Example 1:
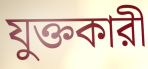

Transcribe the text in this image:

যুক্তকারী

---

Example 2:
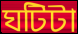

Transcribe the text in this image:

ঘটিটা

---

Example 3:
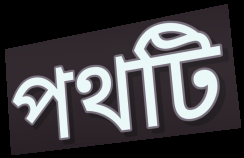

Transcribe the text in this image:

পথটি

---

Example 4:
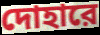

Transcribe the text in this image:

দোহারে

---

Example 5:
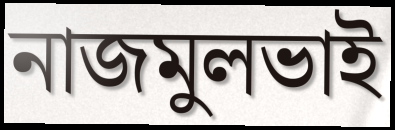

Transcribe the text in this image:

নাজমুলভাই